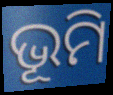
ଭୂମି